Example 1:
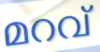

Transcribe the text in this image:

മറവ്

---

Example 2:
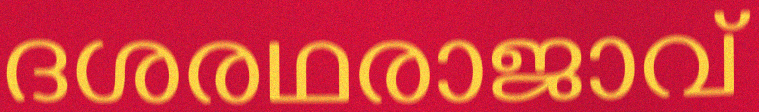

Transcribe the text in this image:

ദശരഥരാജാവ്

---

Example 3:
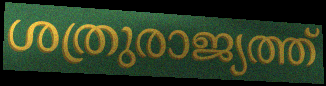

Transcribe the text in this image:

ശത്രുരാജ്യത്ത്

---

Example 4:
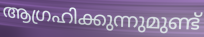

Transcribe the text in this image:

ആഗ്രഹിക്കുന്നുമുണ്ട്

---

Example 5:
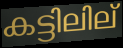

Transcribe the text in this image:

കട്ടിലില്